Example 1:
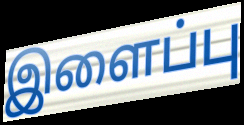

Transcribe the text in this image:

இளைப்பு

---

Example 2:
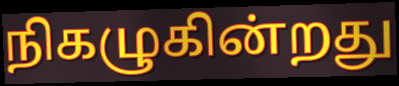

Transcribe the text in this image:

நிகழுகின்றது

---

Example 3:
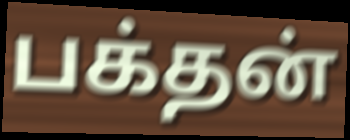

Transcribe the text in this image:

பக்தன்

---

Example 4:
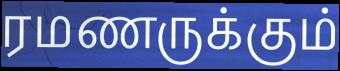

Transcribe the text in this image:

ரமணருக்கும்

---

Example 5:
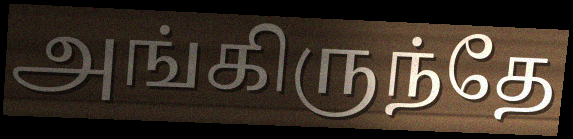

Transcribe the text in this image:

அங்கிருந்தே